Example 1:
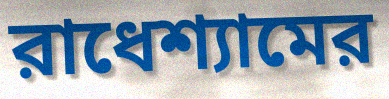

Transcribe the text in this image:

রাধেশ্যামের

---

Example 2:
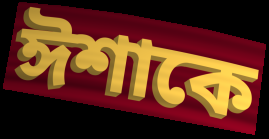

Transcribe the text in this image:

ঈশাকে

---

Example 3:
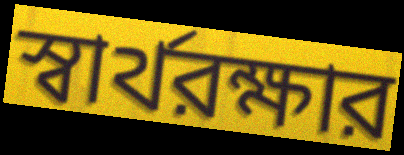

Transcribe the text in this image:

স্বার্থরক্ষার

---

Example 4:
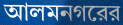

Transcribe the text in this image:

আলমনগরের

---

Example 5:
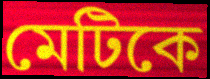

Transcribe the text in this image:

মেটিকে